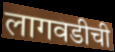
लागवडीची